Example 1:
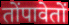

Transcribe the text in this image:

तोंपावेतों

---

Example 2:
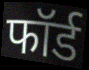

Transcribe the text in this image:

फॉर्ड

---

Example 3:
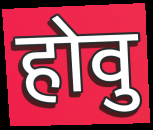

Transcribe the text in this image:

होवु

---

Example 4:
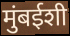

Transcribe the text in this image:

मुंबईशी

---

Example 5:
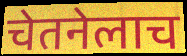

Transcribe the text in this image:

चेतनेलाच